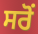
ਸਰੋਂ